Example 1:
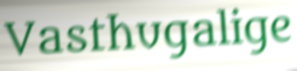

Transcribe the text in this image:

Vasthugalige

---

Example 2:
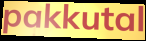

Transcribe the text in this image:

pakkutal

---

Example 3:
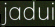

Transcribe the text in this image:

jadui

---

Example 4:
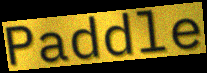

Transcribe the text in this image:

Paddle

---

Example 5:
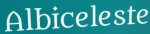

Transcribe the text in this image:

Albiceleste